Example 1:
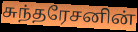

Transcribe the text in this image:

சுந்தரேசனின்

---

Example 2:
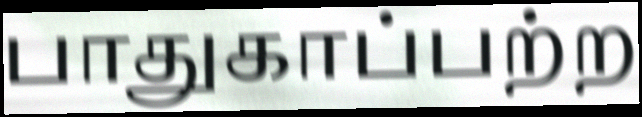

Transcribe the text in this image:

பாதுகாப்பற்ற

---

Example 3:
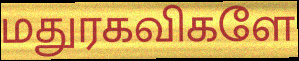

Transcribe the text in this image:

மதுரகவிகளே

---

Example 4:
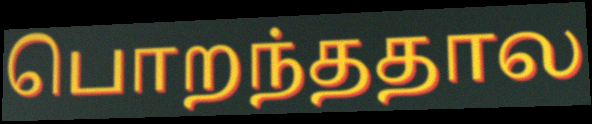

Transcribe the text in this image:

பொறந்ததால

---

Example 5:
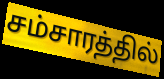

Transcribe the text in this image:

சம்சாரத்தில்